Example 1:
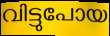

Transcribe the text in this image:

വിട്ടുപോയ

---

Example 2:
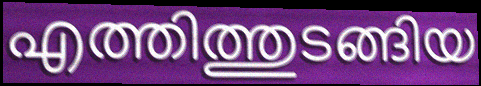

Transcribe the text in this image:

എത്തിത്തുടങ്ങിയ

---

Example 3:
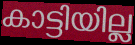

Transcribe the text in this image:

കാട്ടിയില്ല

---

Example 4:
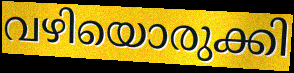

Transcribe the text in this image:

വഴിയൊരുക്കി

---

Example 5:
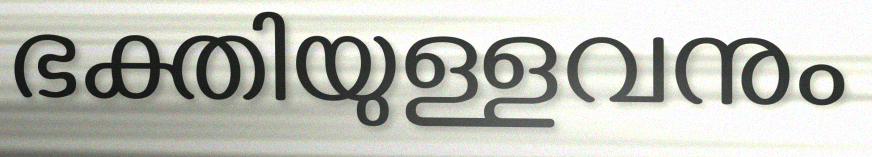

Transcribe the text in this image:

ഭക്തിയുള്ളവനും